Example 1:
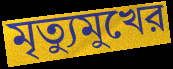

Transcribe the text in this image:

মৃত্যুমুখের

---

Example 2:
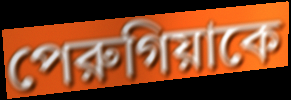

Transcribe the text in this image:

পেরুগিয়াকে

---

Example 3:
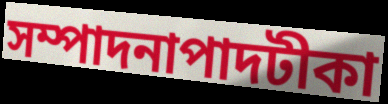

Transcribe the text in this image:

সম্পাদনাপাদটীকা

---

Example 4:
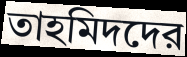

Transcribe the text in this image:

তাহমিদদের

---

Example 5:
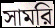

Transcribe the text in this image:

সামরি